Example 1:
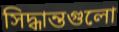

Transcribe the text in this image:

সিদ্ধান্তগুলো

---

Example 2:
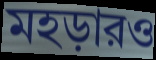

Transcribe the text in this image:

মহড়ারও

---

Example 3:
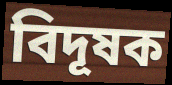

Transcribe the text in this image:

বিদূষক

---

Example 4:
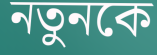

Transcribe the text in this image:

নতুনকে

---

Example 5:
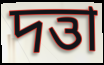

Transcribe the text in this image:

দত্তা